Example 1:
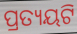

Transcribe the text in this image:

ପ୍ରତ୍ୟୟଟି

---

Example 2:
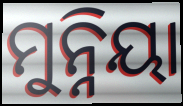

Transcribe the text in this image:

ମୁନ୍ନିୟା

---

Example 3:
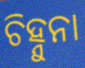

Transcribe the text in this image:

ଚିହ୍ନୁନା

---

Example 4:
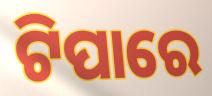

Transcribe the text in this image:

ଟିପାରେ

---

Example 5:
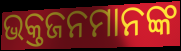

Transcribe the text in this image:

ଭକ୍ତଜନମାନଙ୍କ